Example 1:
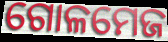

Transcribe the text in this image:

ଗୋଳମେଜ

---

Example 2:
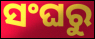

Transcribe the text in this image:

ସଂଘରୁ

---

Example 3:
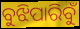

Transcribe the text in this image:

ବୁଝିପାରିବୁଁ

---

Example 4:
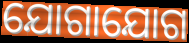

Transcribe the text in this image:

ଯୋଗାଯୋଗ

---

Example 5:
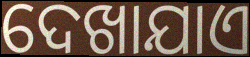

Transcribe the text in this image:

ଦେଖାଯାଏ